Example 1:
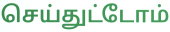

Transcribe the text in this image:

செய்துட்டோம்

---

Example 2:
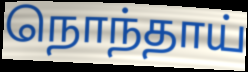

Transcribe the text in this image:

நொந்தாய்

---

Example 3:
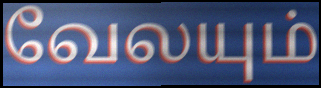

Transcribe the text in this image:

வேலயும்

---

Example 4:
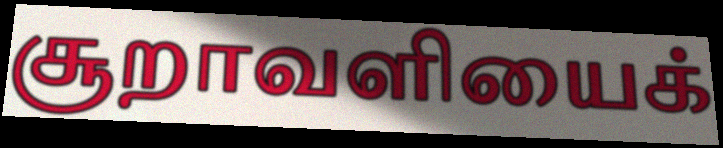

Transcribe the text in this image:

சூறாவளியைக்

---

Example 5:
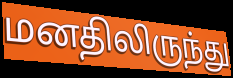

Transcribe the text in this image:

மனதிலிருந்து